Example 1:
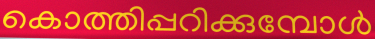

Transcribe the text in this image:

കൊത്തിപ്പറിക്കുമ്പോൾ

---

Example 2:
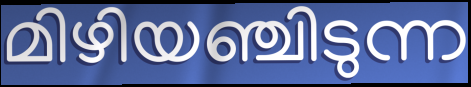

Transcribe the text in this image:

മിഴിയഞ്ചിടുന്ന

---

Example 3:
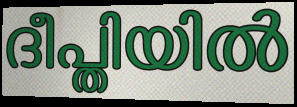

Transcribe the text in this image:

ദീപ്തിയിൽ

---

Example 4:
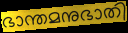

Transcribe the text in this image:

ഭാന്തമനുഭാതി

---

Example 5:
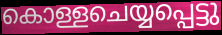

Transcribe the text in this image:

കൊള്ളചെയ്യപ്പെട്ടു